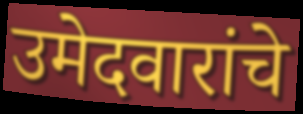
उमेदवारांचे